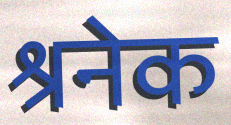
श्रनेक